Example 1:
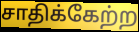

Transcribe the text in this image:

சாதிக்கேற்ற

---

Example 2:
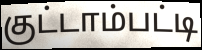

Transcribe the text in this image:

குட்டாம்பட்டி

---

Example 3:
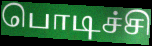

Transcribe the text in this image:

பொடிச்சி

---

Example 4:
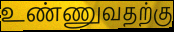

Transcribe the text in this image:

உண்ணுவதற்கு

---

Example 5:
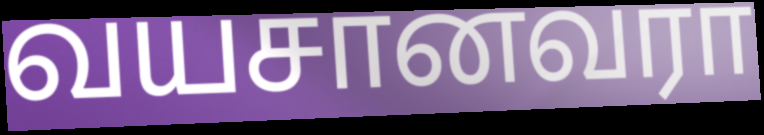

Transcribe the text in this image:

வயசானவரா